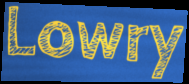
Lowry